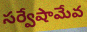
సర్వేషామేవ